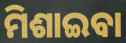
ମିଶାଇବା